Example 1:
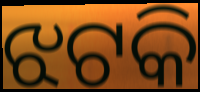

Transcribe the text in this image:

ଝଟକି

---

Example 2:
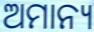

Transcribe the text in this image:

ଅମାନ୍ୟ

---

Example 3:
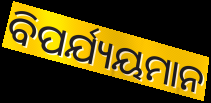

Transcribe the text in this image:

ବିପର୍ଯ୍ୟୟମାନ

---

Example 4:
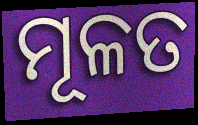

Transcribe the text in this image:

ମୂଳତ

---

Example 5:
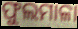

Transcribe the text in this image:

ଫୁଲମାଳା